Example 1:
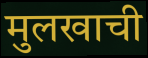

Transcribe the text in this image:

मुलखाची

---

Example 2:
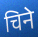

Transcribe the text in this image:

चिने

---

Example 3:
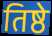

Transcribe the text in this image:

तिष्ठे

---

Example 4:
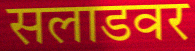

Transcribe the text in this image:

सलाडवर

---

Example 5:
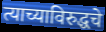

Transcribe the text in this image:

त्याच्याविरुद्धचे